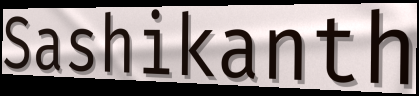
Sashikanth